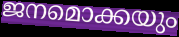
ജനമൊക്കയും